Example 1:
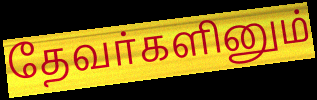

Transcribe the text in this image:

தேவர்களினும்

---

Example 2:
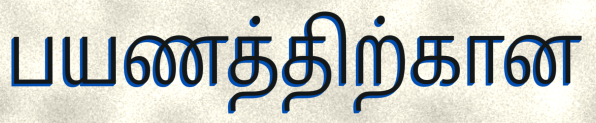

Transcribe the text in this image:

பயணத்திற்கான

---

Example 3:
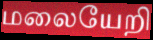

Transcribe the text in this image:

மலையேறி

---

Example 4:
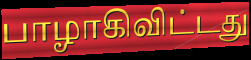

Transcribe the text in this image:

பாழாகிவிட்டது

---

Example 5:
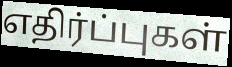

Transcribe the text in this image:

எதிர்ப்புகள்